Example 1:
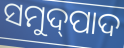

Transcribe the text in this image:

ସମୁଦ୍‌ପାଦ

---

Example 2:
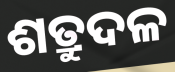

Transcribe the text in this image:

ଶତ୍ରୁଦଳ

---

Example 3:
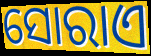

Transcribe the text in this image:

ସୋରାଏ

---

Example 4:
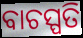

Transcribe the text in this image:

ବାଚସ୍ପତି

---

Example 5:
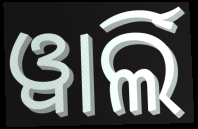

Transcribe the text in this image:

ୱାର୍ଲି